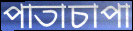
পাতাচাপা